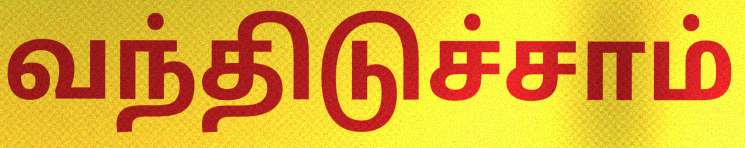
வந்திடுச்சாம்